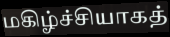
மகிழ்ச்சியாகத்